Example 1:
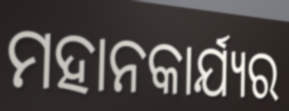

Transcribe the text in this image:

ମହାନକାର୍ଯ୍ୟର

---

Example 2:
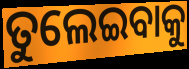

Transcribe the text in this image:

ତୁଲେଇବାକୁ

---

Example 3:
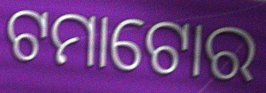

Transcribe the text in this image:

ଟମାଟୋର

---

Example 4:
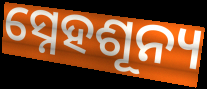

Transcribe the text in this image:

ସ୍ନେହଶୂନ୍ୟ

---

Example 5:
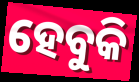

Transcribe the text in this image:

ହେବୁକି